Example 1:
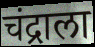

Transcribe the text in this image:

चंद्राला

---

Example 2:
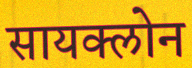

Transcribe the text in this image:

सायक्लोन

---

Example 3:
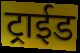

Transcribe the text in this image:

ट्राईड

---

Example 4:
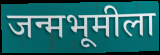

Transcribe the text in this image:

जन्मभूमीला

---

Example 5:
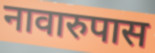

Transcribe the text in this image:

नावारुपास